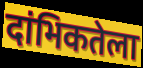
दांभिकतेला